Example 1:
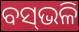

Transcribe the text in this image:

ବସ୍‌ଭଳି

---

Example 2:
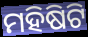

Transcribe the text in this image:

ମହିଷିଟି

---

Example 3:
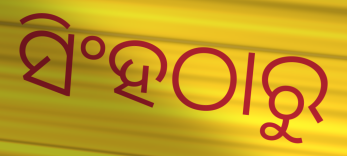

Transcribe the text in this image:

ସିଂହଠାରୁ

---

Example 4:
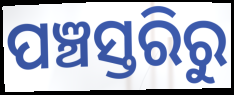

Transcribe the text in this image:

ପଞ୍ଚସ୍ତରିରୁ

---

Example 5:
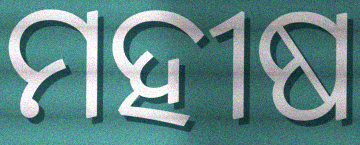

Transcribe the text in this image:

ମହୀଷ